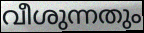
വീശുന്നതും